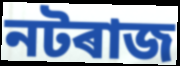
নটৰাজ